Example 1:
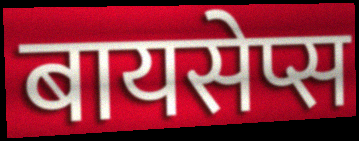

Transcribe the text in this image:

बायसेप्स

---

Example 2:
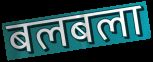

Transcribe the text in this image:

बलबला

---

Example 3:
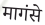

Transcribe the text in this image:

मागंसे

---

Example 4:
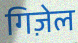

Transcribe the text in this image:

गिज़ेल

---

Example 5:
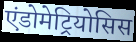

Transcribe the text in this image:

एंडोमेट्रियोसिस